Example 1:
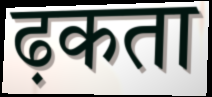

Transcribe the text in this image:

ढ़कता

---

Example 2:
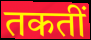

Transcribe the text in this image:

तकतीं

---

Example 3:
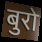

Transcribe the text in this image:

बुरो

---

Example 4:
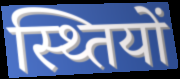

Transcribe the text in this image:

स्थ्तियों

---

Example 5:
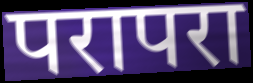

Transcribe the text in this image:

परापरा